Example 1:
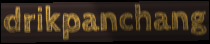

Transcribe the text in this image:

drikpanchang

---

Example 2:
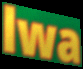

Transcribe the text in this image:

lwa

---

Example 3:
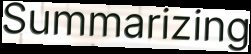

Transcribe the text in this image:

Summarizing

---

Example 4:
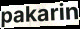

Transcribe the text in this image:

pakarin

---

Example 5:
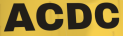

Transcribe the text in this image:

ACDC